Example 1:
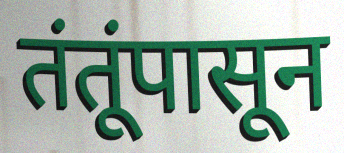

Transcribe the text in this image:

तंतूंपासून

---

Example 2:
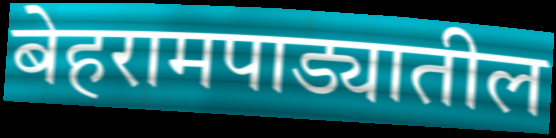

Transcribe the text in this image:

बेहरामपाड्यातील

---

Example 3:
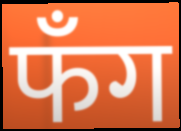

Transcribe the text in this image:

फँग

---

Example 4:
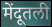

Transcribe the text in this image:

मेंदूतली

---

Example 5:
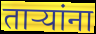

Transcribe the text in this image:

ताऱ्यांना